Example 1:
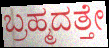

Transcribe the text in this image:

ಬ್ರಹ್ಮದತ್ತೇ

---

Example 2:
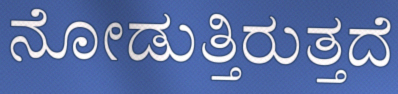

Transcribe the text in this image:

ನೋಡುತ್ತಿರುತ್ತದೆ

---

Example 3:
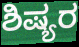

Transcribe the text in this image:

ಶಿಷ್ಯರ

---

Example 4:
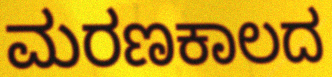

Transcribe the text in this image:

ಮರಣಕಾಲದ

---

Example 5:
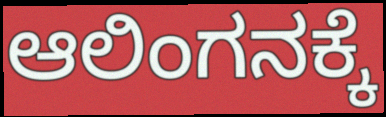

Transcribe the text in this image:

ಆಲಿಂಗನಕ್ಕೆ